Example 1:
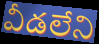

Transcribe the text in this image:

వీడలేని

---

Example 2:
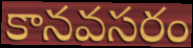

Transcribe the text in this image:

కానవసరం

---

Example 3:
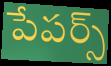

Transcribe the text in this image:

పేపర్స్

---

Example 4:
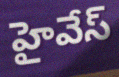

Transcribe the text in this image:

హైవేస్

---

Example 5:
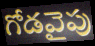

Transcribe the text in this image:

గోడవైపు